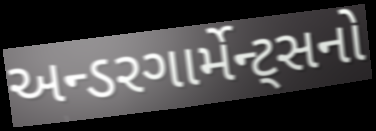
અન્ડરગાર્મેન્ટ્સનો